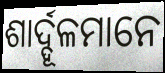
ଶାର୍ଦ୍ଦୂଳମାନେ